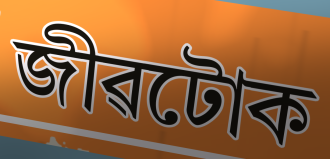
জীৱটোক